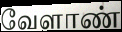
வேளாண்